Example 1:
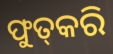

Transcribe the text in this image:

ଫୁତ୍‌କରି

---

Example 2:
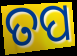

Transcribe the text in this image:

ତପ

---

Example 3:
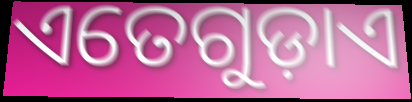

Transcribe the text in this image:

ଏତେଗୁଡ଼ାଏ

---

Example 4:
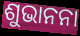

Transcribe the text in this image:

ଶୁଭାନନା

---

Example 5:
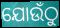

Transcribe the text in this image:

ଯୋଉଁଠୁ